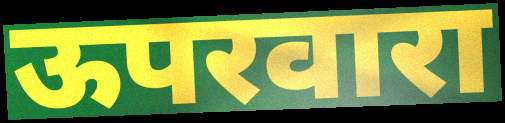
ऊपरवारा